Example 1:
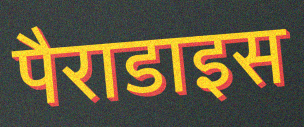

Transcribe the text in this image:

पैराडाइस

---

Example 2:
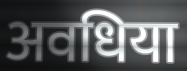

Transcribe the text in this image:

अवधिया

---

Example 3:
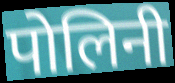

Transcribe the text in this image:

पोलिनी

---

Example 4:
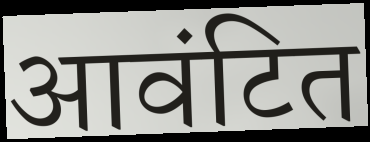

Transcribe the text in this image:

आवंटित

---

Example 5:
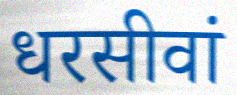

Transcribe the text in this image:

धरसीवां